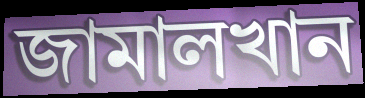
জামালখান